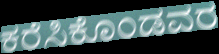
ಕರೆಸಿಕೊಂಡವರ